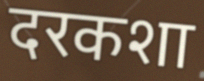
दरकशा